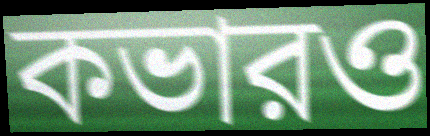
কভারও